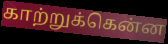
காற்றுக்கென்ன